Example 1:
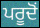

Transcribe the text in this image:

ਪਰੂਦੋਂ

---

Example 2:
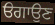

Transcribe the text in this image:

ੳਗਾਉਣ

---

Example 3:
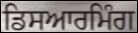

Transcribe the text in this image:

ਡਿਸਆਰਮਿੰਗ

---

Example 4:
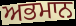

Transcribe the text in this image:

ਅਭਮਾਨ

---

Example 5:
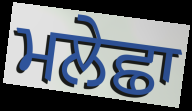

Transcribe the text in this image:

ਮਲੇਛਾ